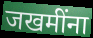
जखमींना